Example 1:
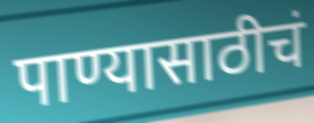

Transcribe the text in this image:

पाण्यासाठीचं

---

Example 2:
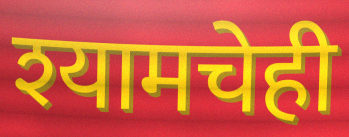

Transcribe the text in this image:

श्यामचेही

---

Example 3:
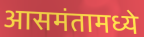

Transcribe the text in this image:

आसमंतामध्ये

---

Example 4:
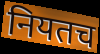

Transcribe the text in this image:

नियतच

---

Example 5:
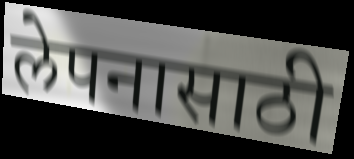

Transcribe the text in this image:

लेपनासाठी